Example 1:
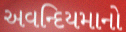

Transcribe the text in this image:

અવન્દિયમાનો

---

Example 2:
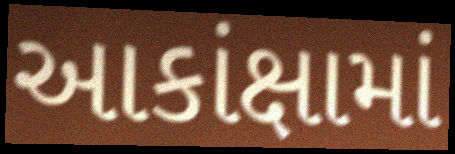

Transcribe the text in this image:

આકાંક્ષામાં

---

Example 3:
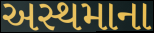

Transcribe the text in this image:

અસ્થમાના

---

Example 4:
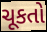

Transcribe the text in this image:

ચૂકતો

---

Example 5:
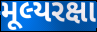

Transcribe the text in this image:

મૂલ્યરક્ષા